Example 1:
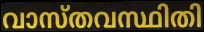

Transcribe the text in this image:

വാസ്തവസ്ഥിതി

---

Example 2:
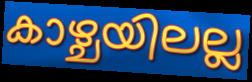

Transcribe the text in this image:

കാഴ്ചയിലല്ല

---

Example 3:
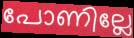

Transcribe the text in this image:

പോണില്ലേ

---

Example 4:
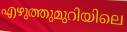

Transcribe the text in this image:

എഴുത്തുമുറിയിലെ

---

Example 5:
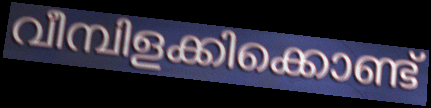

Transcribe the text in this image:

വീമ്പിളക്കിക്കൊണ്ട്